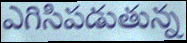
ఎగిసిపడుతున్న